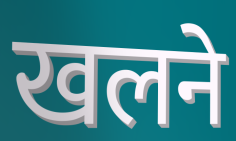
खलने